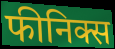
फीनिक्स